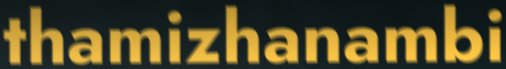
thamizhanambi